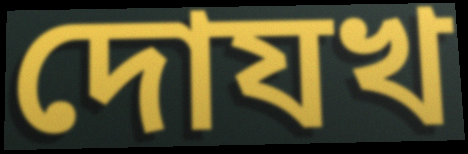
দোযখ